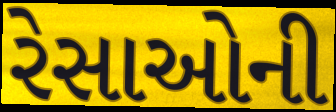
રેસાઓની